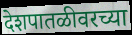
देशपातळीवरच्या